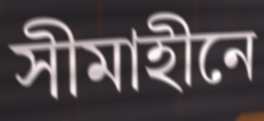
সীমাহীনে